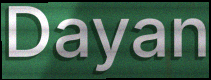
Dayan